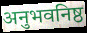
अनुभवनिष्ठ